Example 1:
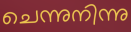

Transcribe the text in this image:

ചെന്നുനിന്നു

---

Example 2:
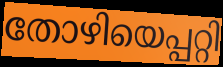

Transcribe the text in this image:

തോഴിയെപ്പറ്റി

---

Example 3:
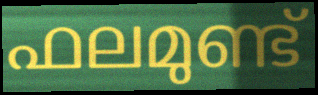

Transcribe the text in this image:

ഫലമുണ്ട്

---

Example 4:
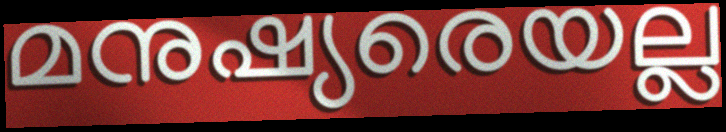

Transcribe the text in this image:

മനുഷ്യരെയല്ല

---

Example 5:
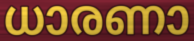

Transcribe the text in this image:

ധാരണാ